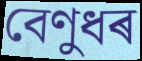
বেণুধৰ